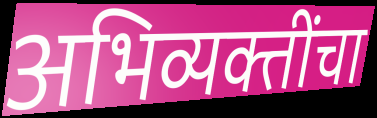
अभिव्यक्तींचा